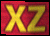
xz